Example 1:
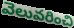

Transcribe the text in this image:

వెలువరించి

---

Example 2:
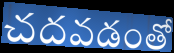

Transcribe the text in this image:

చదవడంతో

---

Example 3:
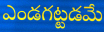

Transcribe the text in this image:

ఎండగట్టడమే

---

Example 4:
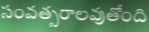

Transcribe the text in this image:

సంవత్సరాలవుతోంది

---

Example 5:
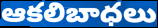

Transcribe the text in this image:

ఆకలిబాధలు